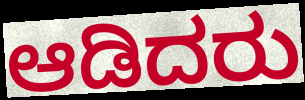
ಆಡಿದರು